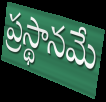
ప్రస్థానమే